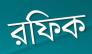
রফিক